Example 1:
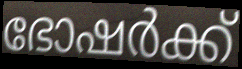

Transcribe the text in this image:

ഭോഷർക്ക്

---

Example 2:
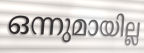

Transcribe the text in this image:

ഒന്നുമായില്ല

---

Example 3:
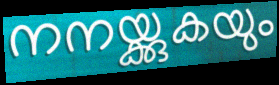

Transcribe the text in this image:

നനയ്ക്കുകയും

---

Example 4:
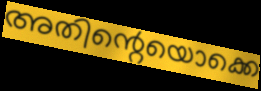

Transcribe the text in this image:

അതിന്റെയൊക്കെ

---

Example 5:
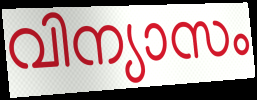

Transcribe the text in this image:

വിന്യാസം